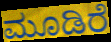
ಮೂಡಿರೆ